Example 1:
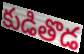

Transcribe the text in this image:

కుడితొడ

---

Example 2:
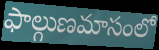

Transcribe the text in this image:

ఫాల్గుణమాసంలో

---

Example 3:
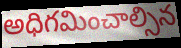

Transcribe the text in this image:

అధిగమించాల్సిన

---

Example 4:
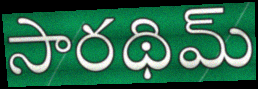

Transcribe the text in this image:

సారథిమ్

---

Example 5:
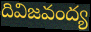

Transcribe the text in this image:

దివిజవంద్య